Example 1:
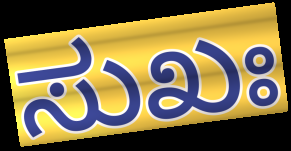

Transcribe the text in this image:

ಸುಖಃ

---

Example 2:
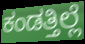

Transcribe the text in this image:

ಕಂಡತ್ತಿಲ್ಲೆ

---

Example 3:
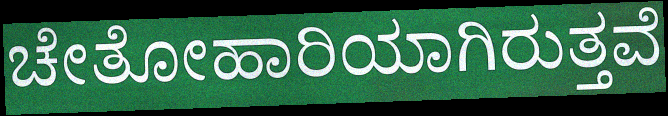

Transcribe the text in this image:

ಚೇತೋಹಾರಿಯಾಗಿರುತ್ತವೆ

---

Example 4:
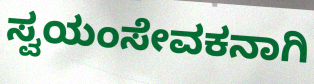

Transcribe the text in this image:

ಸ್ವಯಂಸೇವಕನಾಗಿ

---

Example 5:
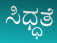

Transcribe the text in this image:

ಸಿಧ್ಧತೆ